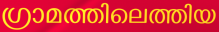
ഗ്രാമത്തിലെത്തിയ